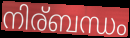
നിര്ബന്ധം